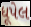
ધૂપેલ